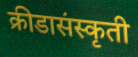
क्रीडासंस्कृती